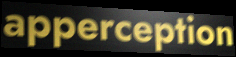
apperception